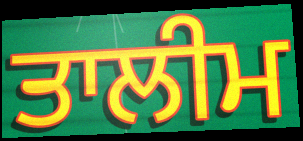
ਤਾਲੀਮ